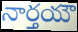
నార్తయౌ